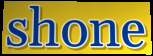
shone